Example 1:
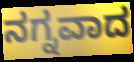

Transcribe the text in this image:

ನಗ್ನವಾದ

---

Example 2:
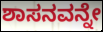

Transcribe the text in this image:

ಶಾಸನವನ್ನೇ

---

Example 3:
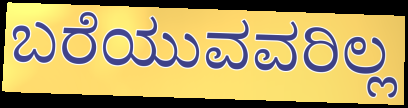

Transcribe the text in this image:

ಬರೆಯುವವರಿಲ್ಲ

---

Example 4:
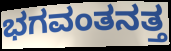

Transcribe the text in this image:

ಭಗವಂತನತ್ತ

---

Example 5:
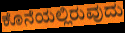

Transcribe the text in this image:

ಕೊನೆಯಲ್ಲಿರುವುದು